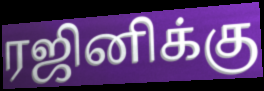
ரஜினிக்கு